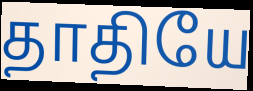
தாதியே